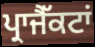
ਪ੍ਰਾਜੈੱਕਟਾਂ